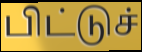
பிட்டுச்